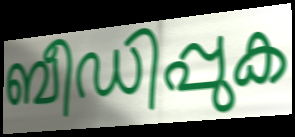
ബീഡിപ്പുക